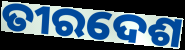
ତୀରଦେଶ